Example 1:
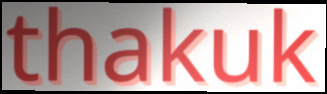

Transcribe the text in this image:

thakuk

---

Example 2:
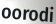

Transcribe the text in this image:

oorodi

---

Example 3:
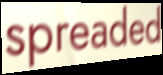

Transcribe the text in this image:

spreaded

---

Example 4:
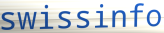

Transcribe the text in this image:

swissinfo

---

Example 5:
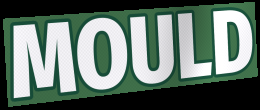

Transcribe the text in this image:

MOULD